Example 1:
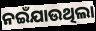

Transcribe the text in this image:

ନଇଁଯାଉଥିଲା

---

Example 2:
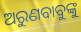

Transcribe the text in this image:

ଅରୁଣବାବୁଙ୍କୁ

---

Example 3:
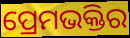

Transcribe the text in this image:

ପ୍ରେମଭକ୍ତିର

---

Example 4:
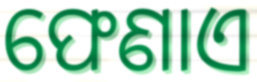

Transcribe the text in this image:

ଫେଣାଏ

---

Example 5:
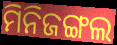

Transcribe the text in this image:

ମିନିଜଙ୍ଗଲ